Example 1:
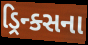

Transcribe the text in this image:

ડ્રિન્ક્સના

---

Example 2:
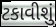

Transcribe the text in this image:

ટકાવીશું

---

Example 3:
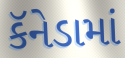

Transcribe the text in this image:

કૅનેડામાં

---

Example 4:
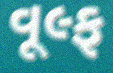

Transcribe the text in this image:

વૂલ્ફ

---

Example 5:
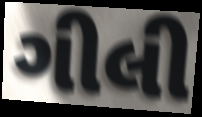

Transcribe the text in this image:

ગીલી